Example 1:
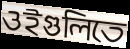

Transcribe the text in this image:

ওইগুলিতে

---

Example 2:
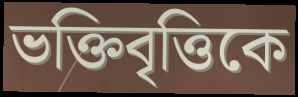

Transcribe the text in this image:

ভক্তিবৃত্তিকে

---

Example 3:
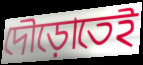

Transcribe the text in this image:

দৌড়োতেই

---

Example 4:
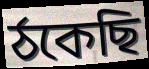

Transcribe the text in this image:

ঠকেছি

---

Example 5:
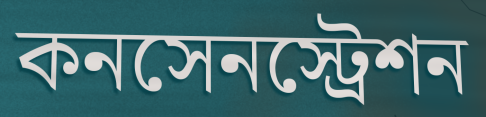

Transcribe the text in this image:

কনসেনস্ট্রেশন